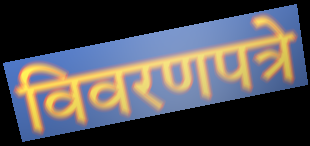
विवरणपत्रे